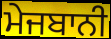
ਮੇਜਬਾਨੀ